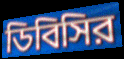
ডিবিসির